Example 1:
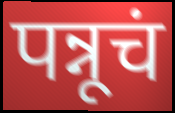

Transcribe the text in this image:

पन्नूचं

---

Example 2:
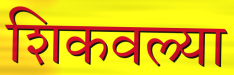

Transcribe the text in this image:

शिकवल्या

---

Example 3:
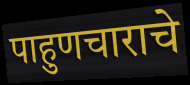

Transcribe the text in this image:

पाहुणचाराचे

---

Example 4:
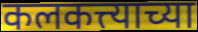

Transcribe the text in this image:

कलकत्त्याच्या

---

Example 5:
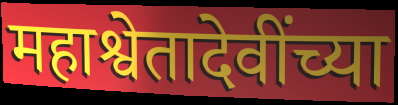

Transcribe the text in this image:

महाश्वेतादेवींच्या